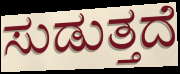
ಸುಡುತ್ತದೆ